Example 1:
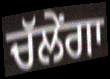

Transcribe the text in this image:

ਚੱਲੇਂਗਾ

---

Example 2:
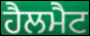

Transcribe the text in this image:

ਹੈਲਮੈਟ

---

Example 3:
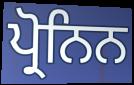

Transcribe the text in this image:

ਪ੍ਰੋਨਿਨ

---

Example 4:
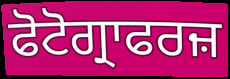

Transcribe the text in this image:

ਫੋਟੋਗ੍ਰਾਫਰਜ਼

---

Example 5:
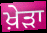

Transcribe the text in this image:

ਖ਼ੇੜਾ